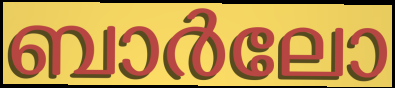
ബാർലോ